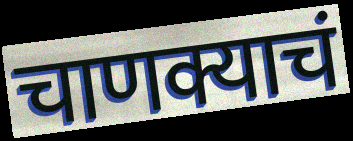
चाणक्याचं